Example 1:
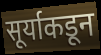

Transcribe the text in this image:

सूर्याकडून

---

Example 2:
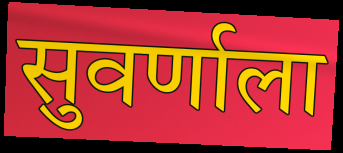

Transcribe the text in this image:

सुवर्णाला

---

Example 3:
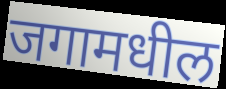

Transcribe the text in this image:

जगामधील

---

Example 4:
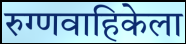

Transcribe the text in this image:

रुग्णवाहिकेला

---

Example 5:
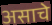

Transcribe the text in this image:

असाचे